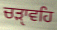
ਚੜੑਾਵਹਿ